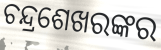
ଚନ୍ଦ୍ରଶେଖରଙ୍କର